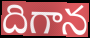
దిగాన